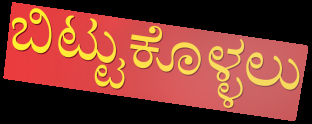
ಬಿಟ್ಟುಕೊಳ್ಳಲು